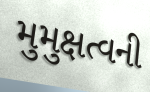
મુમુક્ષત્વની